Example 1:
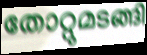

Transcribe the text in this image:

തോറ്റുമടങ്ങി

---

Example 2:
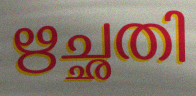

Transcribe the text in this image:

ഋച്ഛതി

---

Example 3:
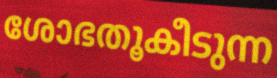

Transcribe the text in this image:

ശോഭതൂകീടുന്ന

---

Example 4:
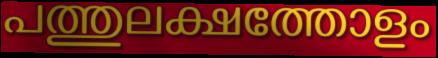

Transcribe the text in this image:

പത്തുലക്ഷത്തോളം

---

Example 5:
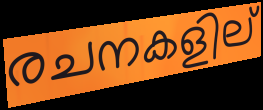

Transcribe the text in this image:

രചനകളില്